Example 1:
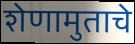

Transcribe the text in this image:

शेणामुताचे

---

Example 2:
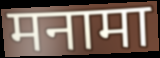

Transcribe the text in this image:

मनामा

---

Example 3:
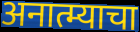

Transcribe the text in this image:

अनात्म्याचा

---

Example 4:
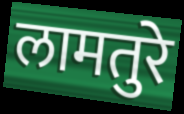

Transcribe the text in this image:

लामतुरे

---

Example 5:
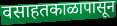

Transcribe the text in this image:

वसाहतकाळापासून